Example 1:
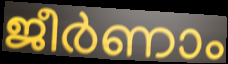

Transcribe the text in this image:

ജീർണാം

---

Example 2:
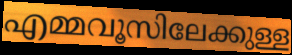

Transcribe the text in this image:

എമ്മവൂസിലേക്കുള്ള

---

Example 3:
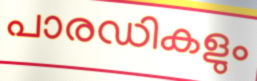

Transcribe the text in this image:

പാരഡികളും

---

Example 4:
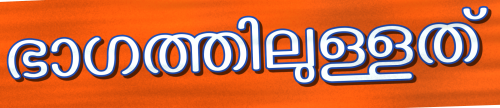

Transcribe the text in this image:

ഭാഗത്തിലുള്ളത്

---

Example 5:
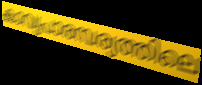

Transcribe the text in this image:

കാവ്യപാരമ്പര്യത്തിലെ